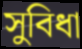
সুবিধা